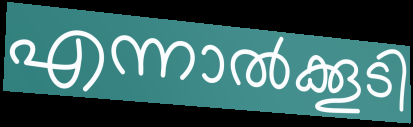
എന്നാൽക്കൂടി